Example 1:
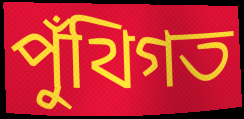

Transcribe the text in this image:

পুঁথিগত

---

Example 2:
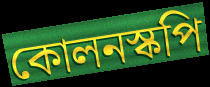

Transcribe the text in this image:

কোলনস্কপি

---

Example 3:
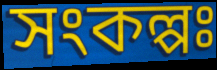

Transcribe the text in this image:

সংকল্পঃ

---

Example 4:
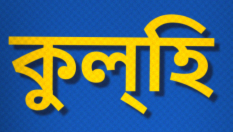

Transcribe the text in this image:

কুল্হি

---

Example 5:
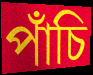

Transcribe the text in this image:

পাঁচি